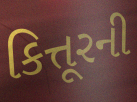
કિત્તૂરની